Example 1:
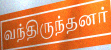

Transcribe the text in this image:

வந்திருந்தனர்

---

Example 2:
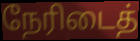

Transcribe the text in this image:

நேரிடைத்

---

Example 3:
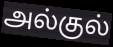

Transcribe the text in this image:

அல்குல்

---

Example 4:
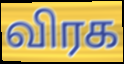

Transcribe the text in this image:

விரக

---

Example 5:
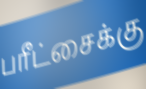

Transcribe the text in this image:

பரீட்சைக்கு